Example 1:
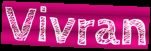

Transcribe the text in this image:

Vivran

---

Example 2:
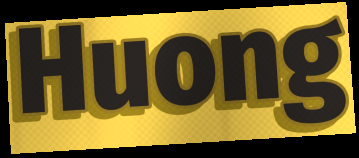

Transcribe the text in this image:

Huong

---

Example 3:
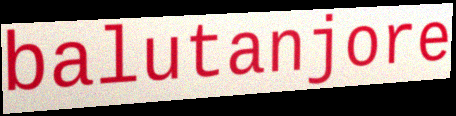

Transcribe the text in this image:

balutanjore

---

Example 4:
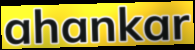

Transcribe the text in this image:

ahankar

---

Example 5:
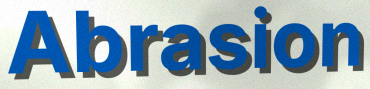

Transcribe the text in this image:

Abrasion